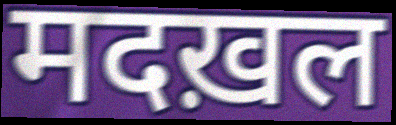
मदख़ल